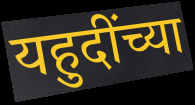
यहुदींच्या